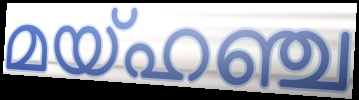
മയ്ഹഞ്ച